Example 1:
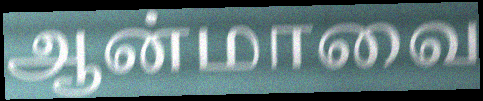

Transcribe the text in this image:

ஆன்மாவை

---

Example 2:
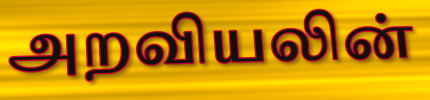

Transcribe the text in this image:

அறவியலின்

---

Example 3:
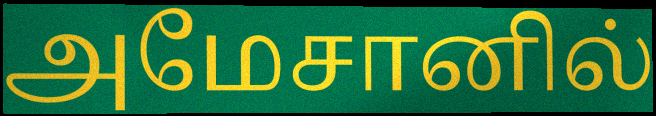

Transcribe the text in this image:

அமேசானில்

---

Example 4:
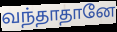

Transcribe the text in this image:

வந்தாதானே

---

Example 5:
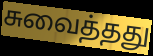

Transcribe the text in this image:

சுவைத்தது